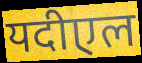
यदीएल